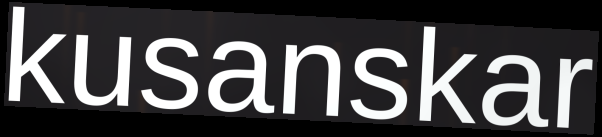
kusanskar